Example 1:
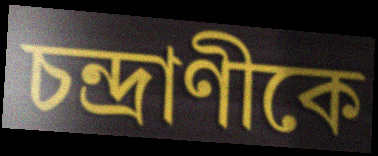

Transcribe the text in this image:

চন্দ্রাণীকে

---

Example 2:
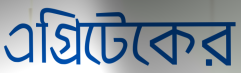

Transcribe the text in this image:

এগ্রিটেকের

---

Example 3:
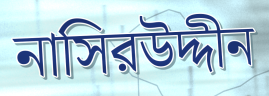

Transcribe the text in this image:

নাসিরউদ্দীন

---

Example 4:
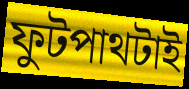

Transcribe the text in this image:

ফুটপাথটাই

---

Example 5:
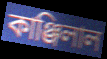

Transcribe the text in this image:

কাঞ্জিলাল